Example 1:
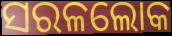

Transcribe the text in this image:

ସରଳଲୋକ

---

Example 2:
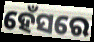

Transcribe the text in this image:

ହେଁସରେ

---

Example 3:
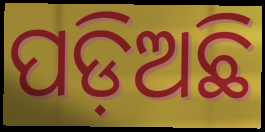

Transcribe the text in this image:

ପଡ଼ିଅଛି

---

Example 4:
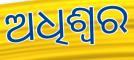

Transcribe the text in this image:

ଅଧିଶ୍ବର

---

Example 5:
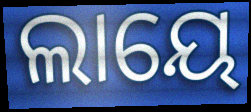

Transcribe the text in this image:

ଲାୟେ